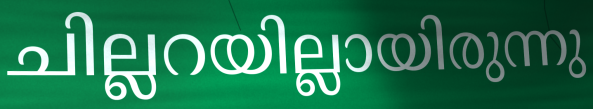
ചില്ലറയില്ലായിരുന്നു